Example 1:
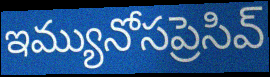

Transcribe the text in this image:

ఇమ్యునోసప్రెసివ్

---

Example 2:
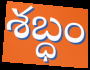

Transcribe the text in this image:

శబ్ధం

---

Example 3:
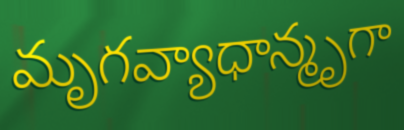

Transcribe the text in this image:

మృగవ్యాధాన్మృగా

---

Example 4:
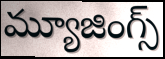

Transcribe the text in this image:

మ్యూజింగ్స్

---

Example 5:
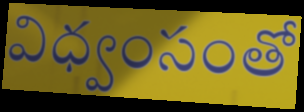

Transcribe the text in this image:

విధ్వంసంతో